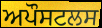
ਅਪੌਸਟਲਸ